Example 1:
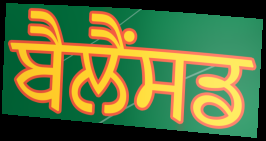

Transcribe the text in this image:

ਬੈਲੈਂਸਡ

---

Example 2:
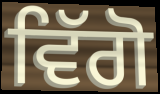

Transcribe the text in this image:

ਵਿੱਗੋ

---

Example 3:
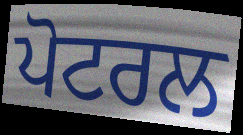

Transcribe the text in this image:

ਪੋਟਰਲ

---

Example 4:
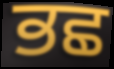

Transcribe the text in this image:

ਭਛ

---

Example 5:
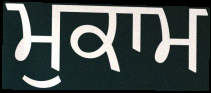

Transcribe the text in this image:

ਮੁਕਾਮ